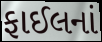
ફાઈલનાં